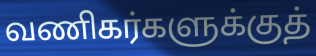
வணிகர்களுக்குத்